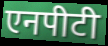
एनपीटी